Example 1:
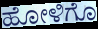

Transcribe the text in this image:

ಹೋಳಿಗೊ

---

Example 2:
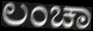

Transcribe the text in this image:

ಲಂಚಾ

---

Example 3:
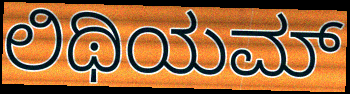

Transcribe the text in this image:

ಲಿಥಿಯಮ್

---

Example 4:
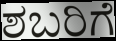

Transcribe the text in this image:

ಶಬರಿಗೆ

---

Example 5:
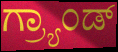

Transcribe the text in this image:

ಗ್ರ್ಯಾಂಡ್